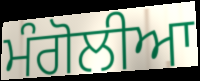
ਮੰਗੋਲੀਆ